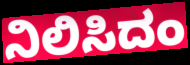
ನಿಲಿಸಿದಂ